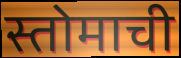
स्तोमाची